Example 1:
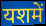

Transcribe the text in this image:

यशमें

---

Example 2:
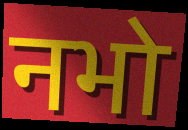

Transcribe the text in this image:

नभो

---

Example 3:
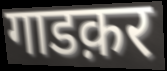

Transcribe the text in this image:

गाडक़र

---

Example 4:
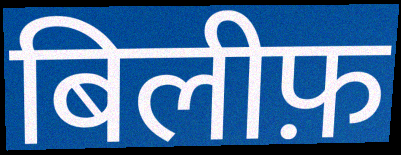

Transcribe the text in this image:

बिलीफ़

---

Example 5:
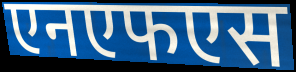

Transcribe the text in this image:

एनएफएस